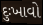
દુઃખાવો